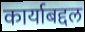
कार्याबद्दल